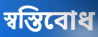
স্বস্তিবোধ